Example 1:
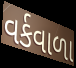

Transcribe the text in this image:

વર્કવાળા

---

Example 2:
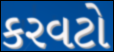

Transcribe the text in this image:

કરવટો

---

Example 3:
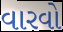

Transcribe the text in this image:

વારવો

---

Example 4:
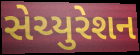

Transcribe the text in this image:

સેચ્યુરેશન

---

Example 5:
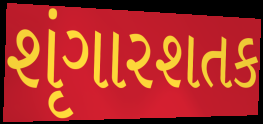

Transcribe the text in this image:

શૃંગારશતક